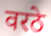
वरठे